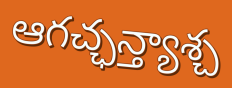
ఆగచ్ఛన్త్యాశ్చ